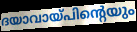
ദയാവായ്പിന്റെയും